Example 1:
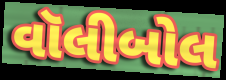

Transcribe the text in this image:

વૉલીબોલ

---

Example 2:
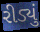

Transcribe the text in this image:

રીડ્યું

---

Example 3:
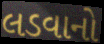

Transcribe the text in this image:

લડવાનો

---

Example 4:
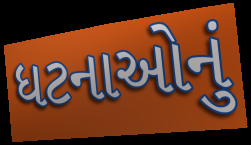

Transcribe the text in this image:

ધટનાઓનું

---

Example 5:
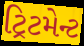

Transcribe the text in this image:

ટ્રિટમેન્ટ